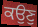
ਕਉਣੁ